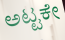
ಅಟ್ಟಕೇ